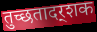
तुच्छतादर्शक